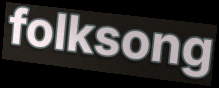
folksong